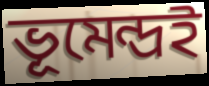
ভূমেন্দ্রই